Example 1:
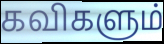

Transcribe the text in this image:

கவிகளும்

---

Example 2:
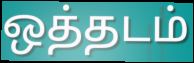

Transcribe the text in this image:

ஒத்தடம்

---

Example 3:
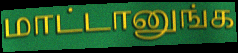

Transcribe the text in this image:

மாட்டானுங்க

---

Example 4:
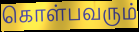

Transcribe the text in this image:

கொள்பவரும்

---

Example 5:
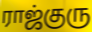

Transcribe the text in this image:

ராஜ்குரு